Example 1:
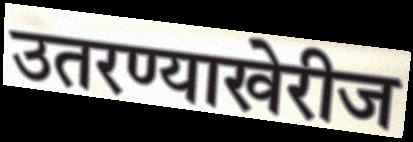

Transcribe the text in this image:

उतरण्याखेरीज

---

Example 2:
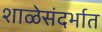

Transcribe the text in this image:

शाळेसंदर्भात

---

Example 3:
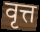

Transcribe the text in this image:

वृत्त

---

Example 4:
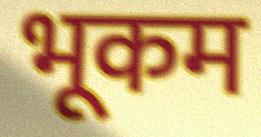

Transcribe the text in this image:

भूकम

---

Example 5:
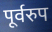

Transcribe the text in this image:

पूर्वरुप